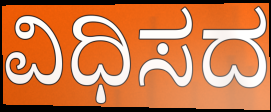
ವಿಧಿಸದ